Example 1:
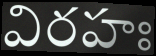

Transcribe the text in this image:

విరహః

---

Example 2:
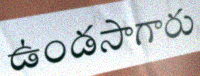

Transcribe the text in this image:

ఉండసాగారు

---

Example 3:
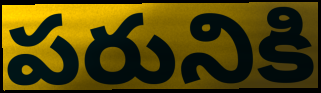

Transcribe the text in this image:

పరునికి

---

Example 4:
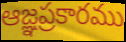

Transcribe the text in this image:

ఆజ్ఞప్రకారము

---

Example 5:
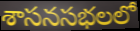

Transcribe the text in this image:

శాసనసభలలో